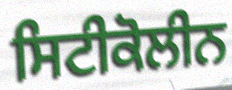
ਸਿਟੀਕੋਲੀਨ